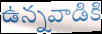
ఉన్నవాడికి